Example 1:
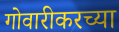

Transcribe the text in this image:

गोवारीकरच्या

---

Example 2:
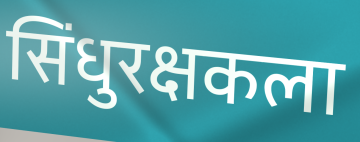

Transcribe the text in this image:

सिंधुरक्षकला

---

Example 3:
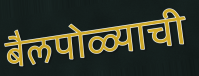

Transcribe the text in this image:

बैलपोळ्याची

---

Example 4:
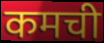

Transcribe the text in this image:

कमची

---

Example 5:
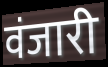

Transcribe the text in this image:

वंजारी